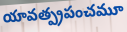
యావత్ప్రపంచమూ